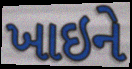
ખાઇને